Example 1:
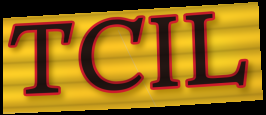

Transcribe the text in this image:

TCIL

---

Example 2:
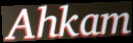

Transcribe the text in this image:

Ahkam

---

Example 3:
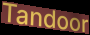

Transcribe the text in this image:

Tandoor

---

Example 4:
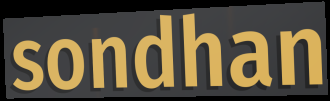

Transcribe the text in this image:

sondhan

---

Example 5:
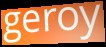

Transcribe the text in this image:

geroy